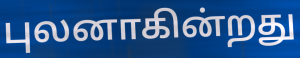
புலனாகின்றது